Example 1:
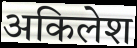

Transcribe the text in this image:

अकिलेश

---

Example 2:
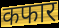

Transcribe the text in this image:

कफार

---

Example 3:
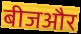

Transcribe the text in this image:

बीजऔर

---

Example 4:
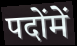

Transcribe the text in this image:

पदोंमें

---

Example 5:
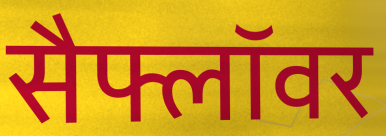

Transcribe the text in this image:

सैफ्लॉवर